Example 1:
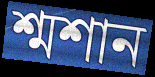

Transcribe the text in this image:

শ্মশান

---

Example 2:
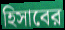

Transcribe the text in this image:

হিসাবের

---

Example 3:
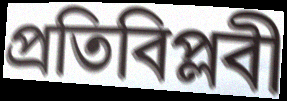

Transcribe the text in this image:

প্রতিবিপ্লবী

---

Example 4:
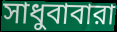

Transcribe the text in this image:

সাধুবাবারা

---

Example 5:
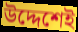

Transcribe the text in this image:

উদ্দেশেই